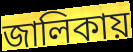
জালিকায়